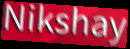
Nikshay